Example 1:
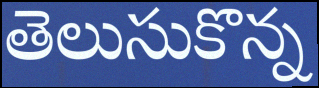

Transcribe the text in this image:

తెలుసుకొన్న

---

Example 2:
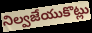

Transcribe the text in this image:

నిల్వజేయుకొట్లు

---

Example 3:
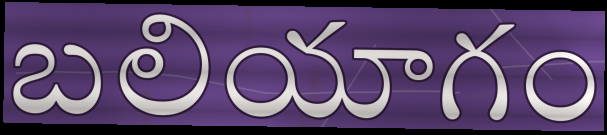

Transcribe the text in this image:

బలియాగం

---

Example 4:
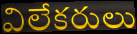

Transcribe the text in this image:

విలేకరులు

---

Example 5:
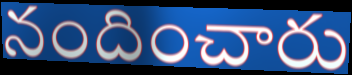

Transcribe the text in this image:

నందించారు